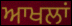
ਆਖਲਾਂ